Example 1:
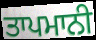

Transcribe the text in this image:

ਤਾਪਮਾਨੀ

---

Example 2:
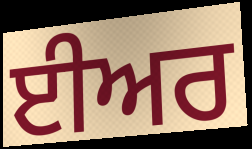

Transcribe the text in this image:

ਈਅਰ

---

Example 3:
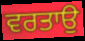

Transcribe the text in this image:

ਵਰਤਾਉ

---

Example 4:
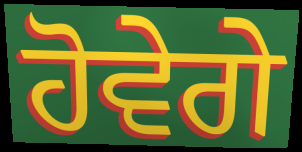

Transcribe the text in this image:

ਹੋਵੇਗੇ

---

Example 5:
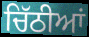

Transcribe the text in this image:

ਚਿੱਠੀਆਂ